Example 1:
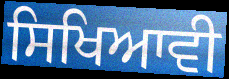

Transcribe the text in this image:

ਸਿਖਿਆਵੀ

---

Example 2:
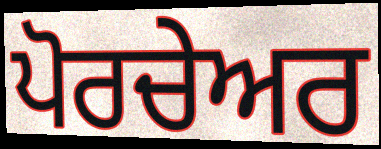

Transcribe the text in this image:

ਪੋਰਚੇਅਰ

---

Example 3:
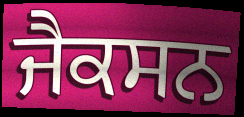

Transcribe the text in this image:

ਜੈਕਸਨ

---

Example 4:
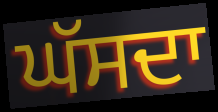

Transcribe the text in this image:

ਘੱਸਦਾ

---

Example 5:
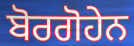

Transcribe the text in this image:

ਬੋਰਗੋਹੇਨ